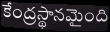
కేంద్రస్థానమైంది